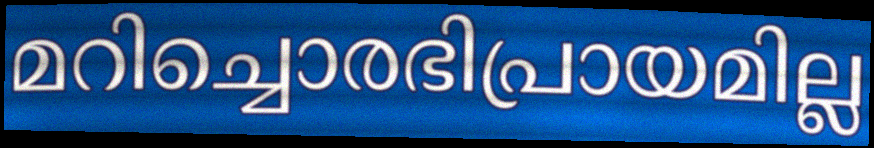
മറിച്ചൊരഭിപ്രായമില്ല